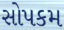
સોપકમ